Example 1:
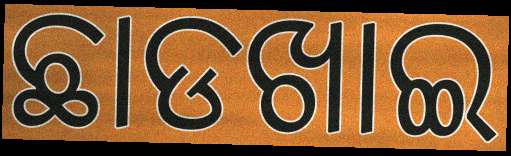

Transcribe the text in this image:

ଛାଡଖାଇ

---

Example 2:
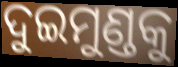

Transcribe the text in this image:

ଦୁଇମୁଣ୍ଡକୁ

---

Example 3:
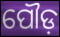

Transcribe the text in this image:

ପୌଡ଼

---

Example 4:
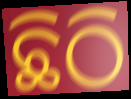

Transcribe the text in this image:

ଛିଠି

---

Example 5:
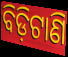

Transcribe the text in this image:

ବିଡ଼ିଟାଣି